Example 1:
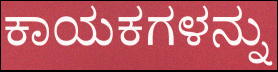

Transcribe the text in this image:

ಕಾಯಕಗಳನ್ನು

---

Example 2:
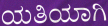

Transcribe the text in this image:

ಯತಿಯಾಗಿ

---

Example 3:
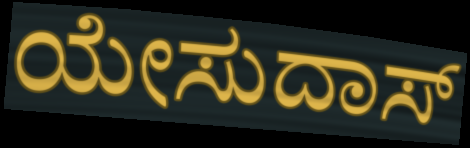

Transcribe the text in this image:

ಯೇಸುದಾಸ್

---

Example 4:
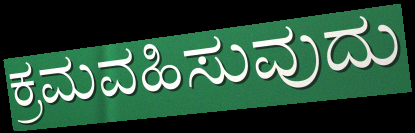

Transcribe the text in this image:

ಕ್ರಮವಹಿಸುವುದು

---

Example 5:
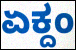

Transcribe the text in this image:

ಏಕ್ದಂ